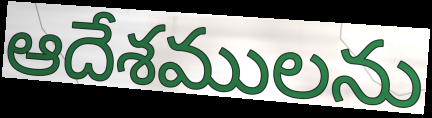
ఆదేశములను